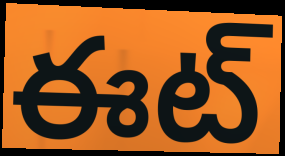
ఈట్